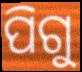
ପିଗୁ